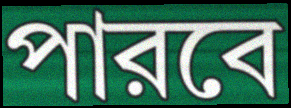
পারবে